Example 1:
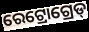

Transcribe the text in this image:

ରେଟ୍ରୋଗ୍ରେଡ୍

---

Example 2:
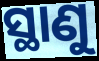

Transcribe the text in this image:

ସ୍ଥାଣୁ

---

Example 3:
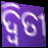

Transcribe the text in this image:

ଦ୍ୱିତୀ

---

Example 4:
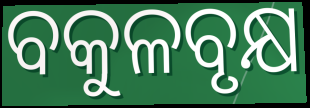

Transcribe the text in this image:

ବକୁଳବୃକ୍ଷ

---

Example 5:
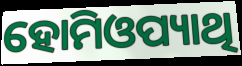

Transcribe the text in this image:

ହୋମିଓପ୍ୟାଥି